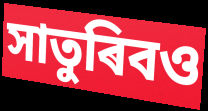
সাতুৰিবও